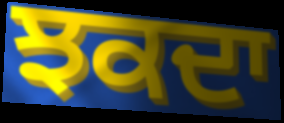
ਝਕਦਾ